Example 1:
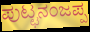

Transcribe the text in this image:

ಪುಟ್ಟನಂಜಪ್ಪ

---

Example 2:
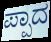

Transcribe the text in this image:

ಪ್ಪಾದ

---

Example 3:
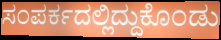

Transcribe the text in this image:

ಸಂಪರ್ಕದಲ್ಲಿದ್ದುಕೊಂಡು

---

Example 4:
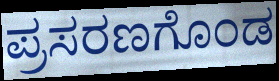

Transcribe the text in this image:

ಪ್ರಸರಣಗೊಂಡ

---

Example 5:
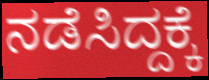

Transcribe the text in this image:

ನಡೆಸಿದ್ದಕ್ಕೆ